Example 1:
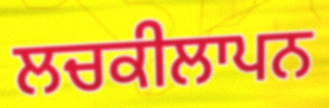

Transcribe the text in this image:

ਲਚਕੀਲਾਪਨ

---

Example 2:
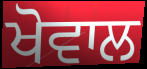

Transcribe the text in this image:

ਖੋਵਾਲ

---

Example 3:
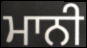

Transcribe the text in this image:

ਮਾਨੀ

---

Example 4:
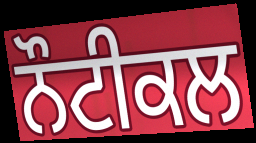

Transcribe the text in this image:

ਨੌਟੀਕਲ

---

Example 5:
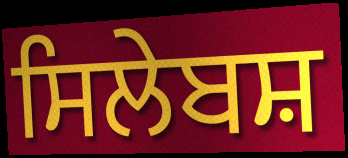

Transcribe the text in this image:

ਸਿਲੇਬਸ਼